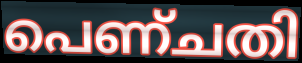
പെണ്ചതി